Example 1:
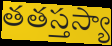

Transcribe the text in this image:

తతస్తస్యా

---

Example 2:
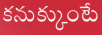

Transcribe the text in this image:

కనుక్కుంటే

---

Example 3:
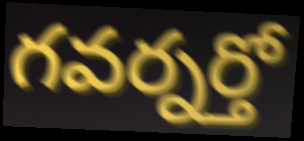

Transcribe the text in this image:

గవర్నర్తో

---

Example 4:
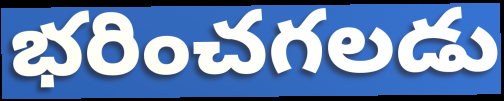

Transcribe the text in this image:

భరించగలడు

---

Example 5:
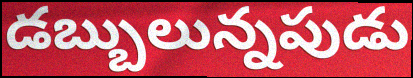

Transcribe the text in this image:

డబ్బులున్నపుడు